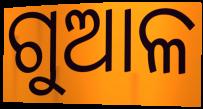
ଗୁଆଳ